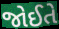
જોઈતે